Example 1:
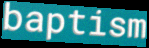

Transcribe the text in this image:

baptism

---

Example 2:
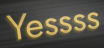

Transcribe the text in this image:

Yessss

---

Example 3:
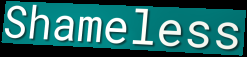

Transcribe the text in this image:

Shameless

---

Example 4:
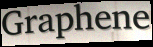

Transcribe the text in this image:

Graphene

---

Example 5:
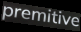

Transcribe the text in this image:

premitive